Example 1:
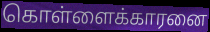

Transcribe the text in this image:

கொள்ளைக்காரனை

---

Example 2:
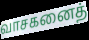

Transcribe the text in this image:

வாசகனைத்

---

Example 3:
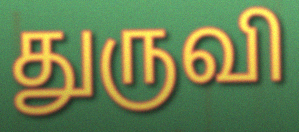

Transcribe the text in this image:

துருவி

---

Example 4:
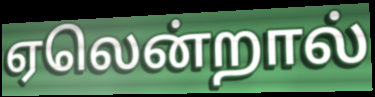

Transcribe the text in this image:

ஏலென்றால்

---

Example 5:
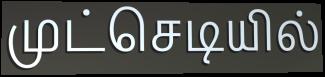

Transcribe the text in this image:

முட்செடியில்